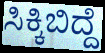
ಸಿಕ್ಕಿಬಿದ್ದೆ